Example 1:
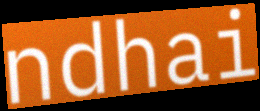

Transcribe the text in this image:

ndhai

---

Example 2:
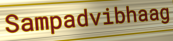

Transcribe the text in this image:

Sampadvibhaag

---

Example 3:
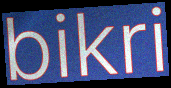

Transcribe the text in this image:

bikri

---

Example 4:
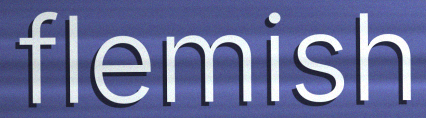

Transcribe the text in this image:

flemish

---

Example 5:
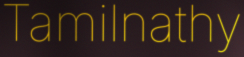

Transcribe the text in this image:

Tamilnathy